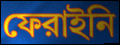
ফেরাইনি